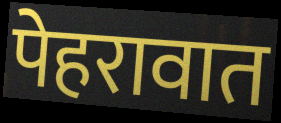
पेहरावात